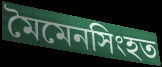
মৈমেনসিংহত